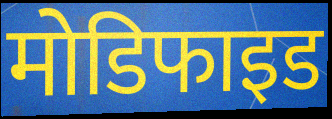
मोडिफाइड